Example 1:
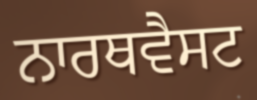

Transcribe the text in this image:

ਨਾਰਥਵੈਸਟ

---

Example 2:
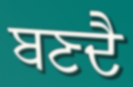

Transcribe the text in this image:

ਬਣਦੈ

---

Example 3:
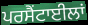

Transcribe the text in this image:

ਪਰਸੈਂਟਾਈਲਾਂ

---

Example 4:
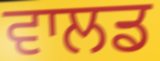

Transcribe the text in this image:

ਵਾਲਡ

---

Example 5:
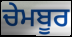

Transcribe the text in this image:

ਚੇਮਬੂਰ